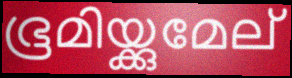
ഭൂമിയ്ക്കുമേല്